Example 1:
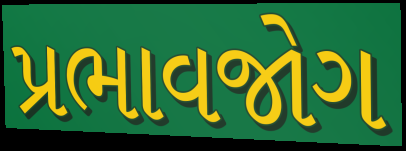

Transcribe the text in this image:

પ્રભાવજોગ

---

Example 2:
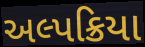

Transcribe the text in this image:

અલ્પક્રિયા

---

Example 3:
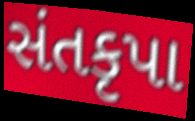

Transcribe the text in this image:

સંતકૃપા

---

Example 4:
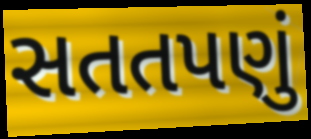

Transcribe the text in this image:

સતતપણું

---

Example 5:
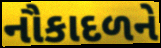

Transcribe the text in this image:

નૌકાદળને